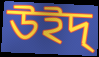
উইদ্